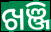
ଖଞ୍ଜି